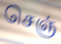
செஞ்